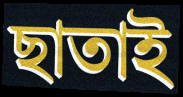
ছাতাই